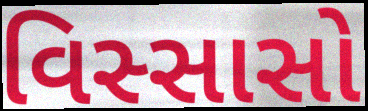
વિસ્સાસો